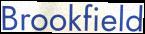
Brookfield